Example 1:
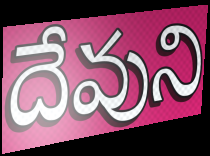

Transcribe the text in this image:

దేవుని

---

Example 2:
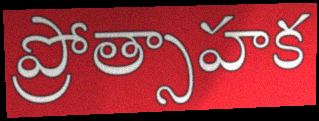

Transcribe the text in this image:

ప్రోత్సాహక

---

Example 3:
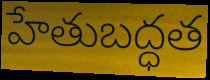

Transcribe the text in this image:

హేతుబద్ధత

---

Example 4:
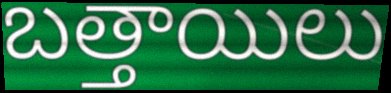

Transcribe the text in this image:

బత్తాయిలు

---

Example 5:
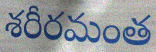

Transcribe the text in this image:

శరీరమంత